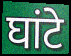
घांटे